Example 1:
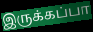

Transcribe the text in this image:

இருக்கப்பா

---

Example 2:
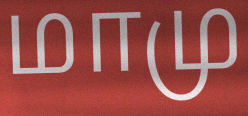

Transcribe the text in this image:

மாமு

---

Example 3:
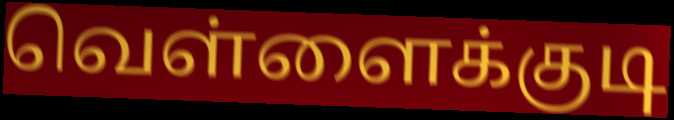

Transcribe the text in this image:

வெள்ளைக்குடி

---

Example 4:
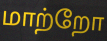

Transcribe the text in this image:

மாற்றோ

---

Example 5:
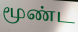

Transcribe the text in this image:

மூண்ட